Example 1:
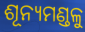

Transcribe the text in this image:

ଶୂନ୍ୟମଣ୍ଡଳୁ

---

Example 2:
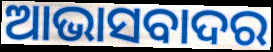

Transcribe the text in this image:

ଆଭାସବାଦର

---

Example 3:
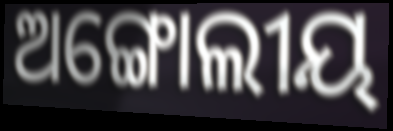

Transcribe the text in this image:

ଅଙ୍ଗୋଲୀୟ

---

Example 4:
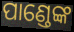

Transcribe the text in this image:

ପାଣ୍ଡେଙ୍କ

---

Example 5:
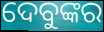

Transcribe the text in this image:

ଦେବୁଙ୍କର